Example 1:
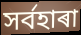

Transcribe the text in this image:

সৰ্বহাৰা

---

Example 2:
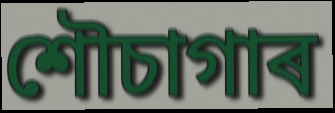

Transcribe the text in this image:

শৌচাগাৰ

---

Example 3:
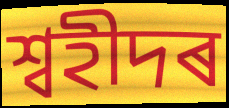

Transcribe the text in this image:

শ্বহীদৰ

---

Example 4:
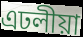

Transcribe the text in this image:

এঢলীয়া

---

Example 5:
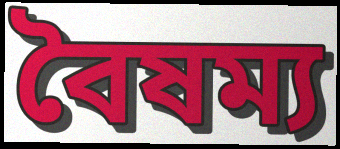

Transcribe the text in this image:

বৈষম্য